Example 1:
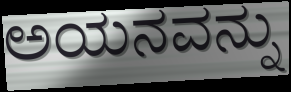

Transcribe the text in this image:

ಅಯನವನ್ನು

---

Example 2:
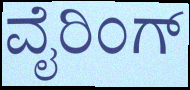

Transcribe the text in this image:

ವೈರಿಂಗ್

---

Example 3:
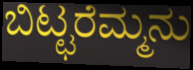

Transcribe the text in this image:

ಬಿಟ್ಟರೆಮ್ಮನು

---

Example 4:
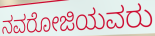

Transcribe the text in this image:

ನವರೋಜಿಯವರು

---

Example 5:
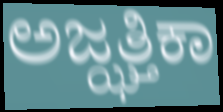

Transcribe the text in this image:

ಅಜ್ಝತ್ತಿಕಾ